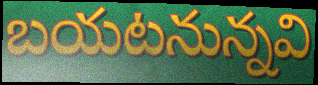
బయటనున్నవి